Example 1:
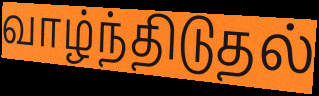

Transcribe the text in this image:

வாழ்ந்திடுதல்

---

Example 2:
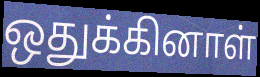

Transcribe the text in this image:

ஒதுக்கினாள்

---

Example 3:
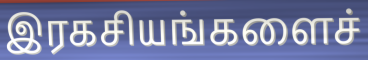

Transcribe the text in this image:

இரகசியங்களைச்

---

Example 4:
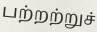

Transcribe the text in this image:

பற்றற்றுச்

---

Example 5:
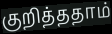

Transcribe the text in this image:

குறித்ததாம்